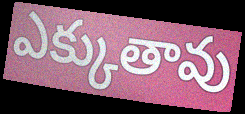
ఎక్కుతావు